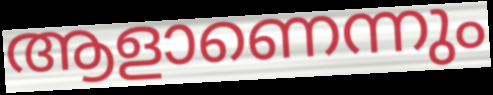
ആളാണെന്നും